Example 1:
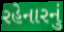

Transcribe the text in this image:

રહેનારનું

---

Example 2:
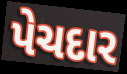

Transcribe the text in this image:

પેચદાર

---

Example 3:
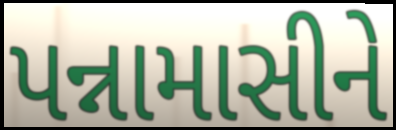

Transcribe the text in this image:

પન્નામાસીને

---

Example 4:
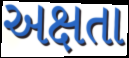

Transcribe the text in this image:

અક્ષતા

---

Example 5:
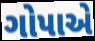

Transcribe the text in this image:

ગોપાએ